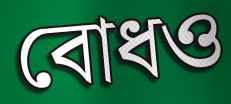
বোধও